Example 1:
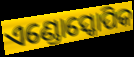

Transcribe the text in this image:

ଏଣ୍ଡୋସ୍କୋପିକ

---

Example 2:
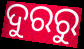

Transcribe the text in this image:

ଦୁରରୁ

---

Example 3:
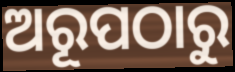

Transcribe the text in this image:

ଅରୂପଠାରୁ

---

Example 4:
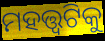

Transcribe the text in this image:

ମହତ୍ତ୍ୱଟିକୁ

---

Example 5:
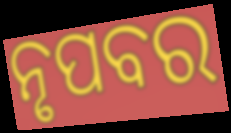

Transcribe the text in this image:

ନୃପବର